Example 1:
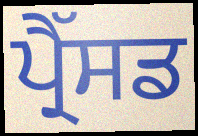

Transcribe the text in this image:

ਪ੍ਰੈੱਸਡ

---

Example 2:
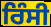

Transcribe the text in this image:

ਰਿੰਸੀ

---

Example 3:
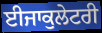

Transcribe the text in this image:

ਈਜਾਕੁਲੇਟਰੀ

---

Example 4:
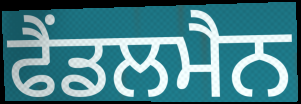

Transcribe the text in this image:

ਫੈਂਡਲਮੈਨ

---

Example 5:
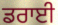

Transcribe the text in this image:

ਡਰਾਈ